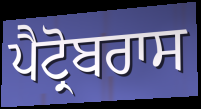
ਪੈਟ੍ਰੋਬਰਾਸ